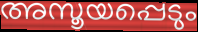
അസൂയപ്പെടും